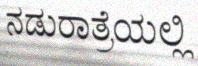
ನಡುರಾತ್ರೆಯಲ್ಲಿ